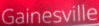
Gainesville